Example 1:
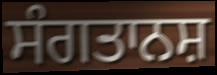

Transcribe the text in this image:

ਸੰਗਤਾਨਸ਼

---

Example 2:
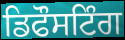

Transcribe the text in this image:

ਡਿਫੌਸਟਿੰਗ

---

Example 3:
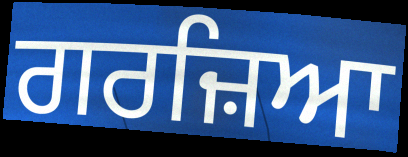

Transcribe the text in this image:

ਗਰਜ਼ਿਆ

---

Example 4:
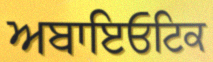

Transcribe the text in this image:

ਅਬਾਇਓਟਿਕ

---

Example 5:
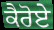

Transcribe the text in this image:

ਕੈਰੋਏ